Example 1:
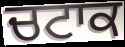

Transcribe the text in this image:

ਚਟਾਕ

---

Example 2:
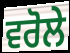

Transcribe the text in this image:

ਵਰੋਲੇ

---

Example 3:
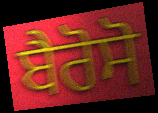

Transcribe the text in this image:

ਬੈਰੋਸੋ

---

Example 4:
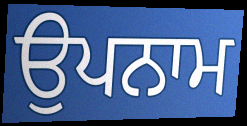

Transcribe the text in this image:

ਉਪਨਾਮ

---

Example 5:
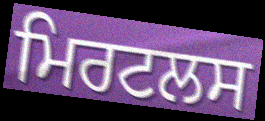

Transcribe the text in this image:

ਮਿਰਟਲਸ